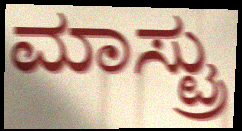
ಮಾಸ್ಟ್ರು